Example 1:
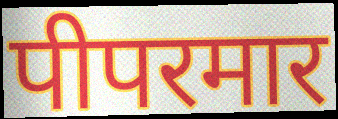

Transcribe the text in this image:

पीपरमार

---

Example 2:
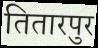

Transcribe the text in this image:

तितारपुर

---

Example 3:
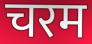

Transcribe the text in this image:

चरम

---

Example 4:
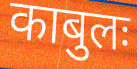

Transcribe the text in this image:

काबुलः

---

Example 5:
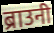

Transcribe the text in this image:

ब्राउनी